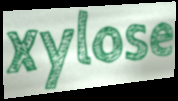
xylose